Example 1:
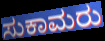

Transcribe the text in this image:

ಸುಕಾಮರು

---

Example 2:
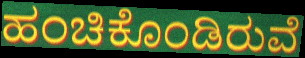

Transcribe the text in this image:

ಹಂಚಿಕೊಂಡಿರುವೆ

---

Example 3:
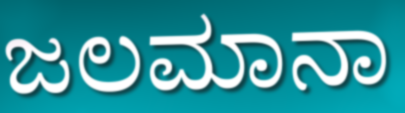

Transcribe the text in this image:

ಜಲಮಾನಾ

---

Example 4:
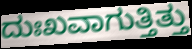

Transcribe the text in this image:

ದುಃಖವಾಗುತ್ತಿತ್ತು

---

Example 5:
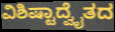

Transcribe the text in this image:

ವಿಶಿಷ್ಟಾದ್ವೈತದ